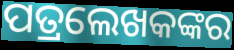
ପତ୍ରଲେଖକଙ୍କର